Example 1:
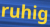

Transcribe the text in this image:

ruhig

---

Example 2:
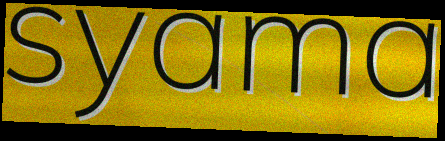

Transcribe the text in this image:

syama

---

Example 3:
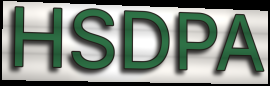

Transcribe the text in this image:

HSDPA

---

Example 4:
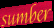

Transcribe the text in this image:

sumber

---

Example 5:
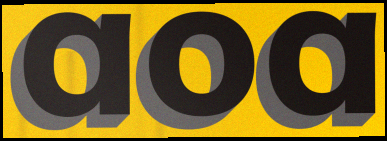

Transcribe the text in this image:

aoa